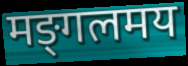
मङ्गलमय